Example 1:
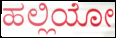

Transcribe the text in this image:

ಹಲ್ಲಿಯೋ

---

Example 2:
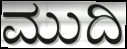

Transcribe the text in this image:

ಮುದಿ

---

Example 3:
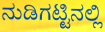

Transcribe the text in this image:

ನುಡಿಗಟ್ಟಿನಲ್ಲಿ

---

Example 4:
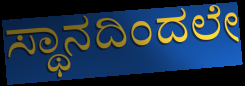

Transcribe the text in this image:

ಸ್ಥಾನದಿಂದಲೇ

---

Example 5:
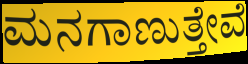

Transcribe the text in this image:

ಮನಗಾಣುತ್ತೇವೆ